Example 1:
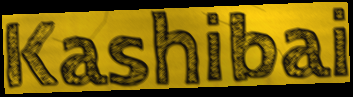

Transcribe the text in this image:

Kashibai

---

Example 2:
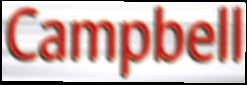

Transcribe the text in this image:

Campbell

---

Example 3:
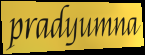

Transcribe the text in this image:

pradyumna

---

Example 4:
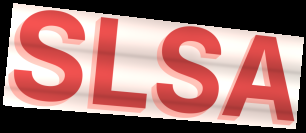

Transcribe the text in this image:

SLSA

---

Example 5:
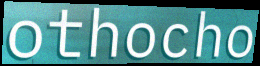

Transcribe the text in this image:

othocho